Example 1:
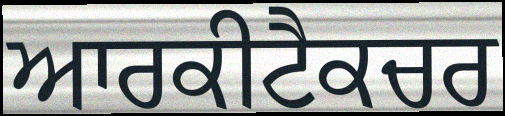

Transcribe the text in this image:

ਆਰਕੀਟੈਕਚਰ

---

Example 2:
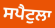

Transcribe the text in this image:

ਸਪੈਟੁਲਾ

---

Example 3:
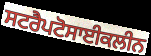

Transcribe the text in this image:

ਸਟਰੈਪਟੋਸਾਈਕਲੀਨ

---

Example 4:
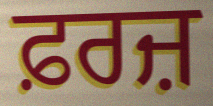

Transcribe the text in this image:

ਫ਼ਰਜ਼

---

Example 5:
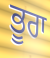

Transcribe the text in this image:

ਭੂਰਾ